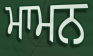
ਮਾਮਨ